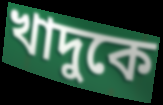
খাদুকে